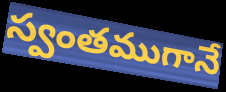
స్వంతముగానే